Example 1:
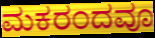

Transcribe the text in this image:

ಮಕರಂದವೂ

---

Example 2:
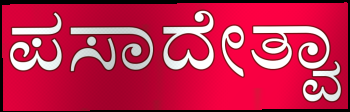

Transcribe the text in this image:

ಪಸಾದೇತ್ವಾ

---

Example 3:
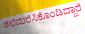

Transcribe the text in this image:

ತಲೆಮರೆಸಿಕೊಂಡಿದ್ದಾರೆ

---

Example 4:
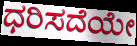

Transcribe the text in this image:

ಧರಿಸದೆಯೇ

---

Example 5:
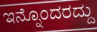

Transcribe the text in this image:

ಇನ್ನೊಂದರದ್ದು